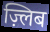
ज़्लिब